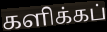
களிக்கப்